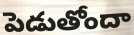
పెడుతోందా